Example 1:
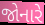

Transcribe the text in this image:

જોનારે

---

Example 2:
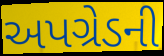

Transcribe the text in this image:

અપગ્રેડની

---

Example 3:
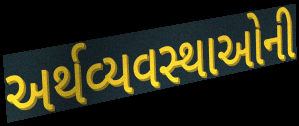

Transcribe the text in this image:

અર્થવ્યવસ્થાઓની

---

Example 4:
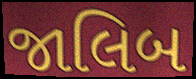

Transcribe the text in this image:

જાલિબ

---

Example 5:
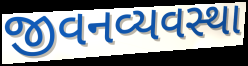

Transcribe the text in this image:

જીવનવ્યવસ્થા